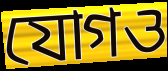
যোগও